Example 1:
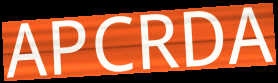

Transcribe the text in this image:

APCRDA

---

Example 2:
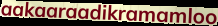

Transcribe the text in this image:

aakaaraadikramamloo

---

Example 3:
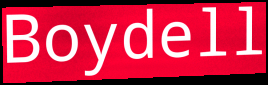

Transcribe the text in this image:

Boydell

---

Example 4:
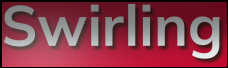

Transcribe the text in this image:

Swirling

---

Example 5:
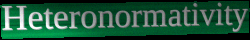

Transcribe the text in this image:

Heteronormativity